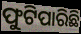
ଫୁଟିପାରିଛି